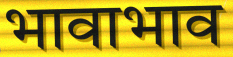
भावाभाव